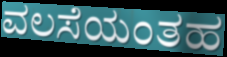
ವಲಸೆಯಂತಹ